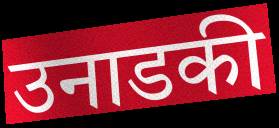
उनाडकी